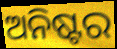
ଅନିଷ୍ଟର